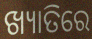
ଖ୍ୟାତିରେ